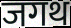
जगथ